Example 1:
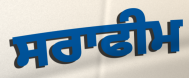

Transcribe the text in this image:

ਸਰਾਫੀਮ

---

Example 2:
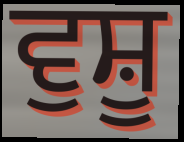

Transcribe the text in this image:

ਵੁਸ਼ੂ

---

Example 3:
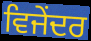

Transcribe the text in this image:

ਵਿਜੇਂਦਰ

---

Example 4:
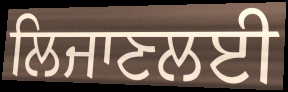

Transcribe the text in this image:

ਲਿਜਾਣਲਈ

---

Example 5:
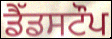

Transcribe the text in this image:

ਡੈੱਡਸਟੌਪ